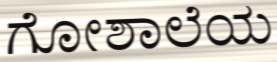
ಗೋಶಾಲೆಯ